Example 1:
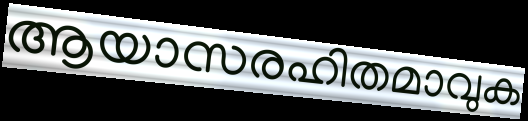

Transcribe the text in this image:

ആയാസരഹിതമാവുക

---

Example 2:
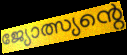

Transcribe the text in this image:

ജ്യോത്സ്യന്റെ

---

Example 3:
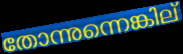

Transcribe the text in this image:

തോന്നുന്നെങ്കില്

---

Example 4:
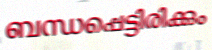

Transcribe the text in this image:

ബന്ധപ്പെട്ടിരിക്കും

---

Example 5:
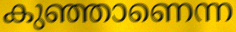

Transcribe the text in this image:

കുഞ്ഞാണെന്ന